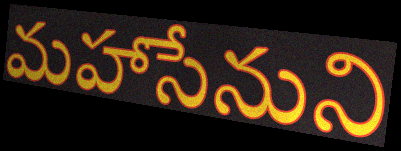
మహాసేనుని